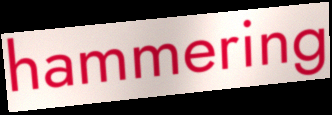
hammering